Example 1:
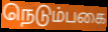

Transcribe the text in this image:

நெடும்பகை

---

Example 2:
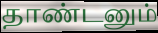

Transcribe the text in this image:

தாண்டனும்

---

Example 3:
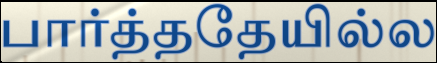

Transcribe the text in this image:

பார்த்ததேயில்ல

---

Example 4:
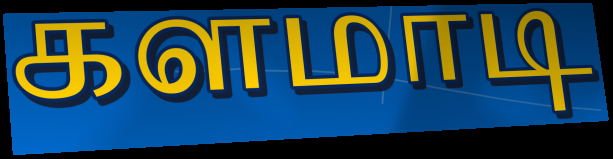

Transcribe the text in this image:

களமாடி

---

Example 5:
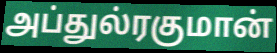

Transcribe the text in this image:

அப்துல்ரகுமான்